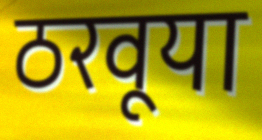
ठरवूया